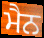
ਮੈਨ